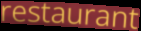
restaurant